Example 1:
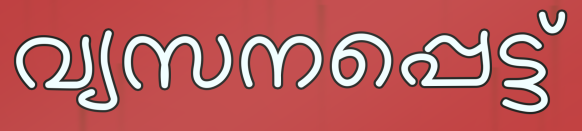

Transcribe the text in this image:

വ്യസനപ്പെട്ട്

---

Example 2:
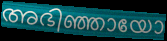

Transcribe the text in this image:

അഭിഞ്ഞായോ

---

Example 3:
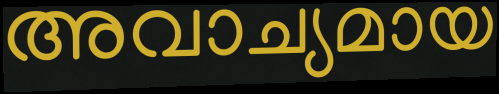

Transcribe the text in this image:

അവാച്യമായ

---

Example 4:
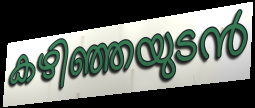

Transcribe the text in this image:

കഴിഞ്ഞയുടൻ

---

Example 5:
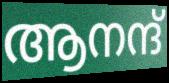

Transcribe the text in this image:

ആനന്ദ്